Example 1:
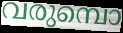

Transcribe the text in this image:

വരുമ്പൊ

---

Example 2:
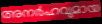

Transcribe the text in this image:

അനർഹവുമായ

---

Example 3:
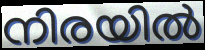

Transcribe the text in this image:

നിരയിൽ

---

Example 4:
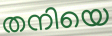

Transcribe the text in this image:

തനിയെ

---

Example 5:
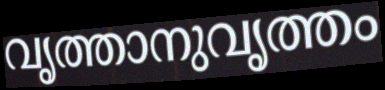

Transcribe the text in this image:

വൃത്താനുവൃത്തം